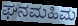
ಘನಮಹಿಮ